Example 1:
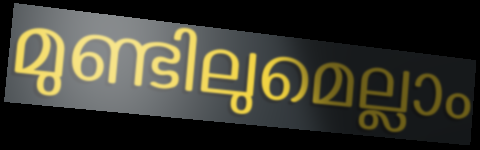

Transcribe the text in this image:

മുണ്ടിലുമെല്ലാം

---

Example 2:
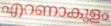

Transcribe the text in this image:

എറണാകുളം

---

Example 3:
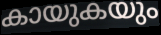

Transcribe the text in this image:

കായുകയും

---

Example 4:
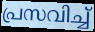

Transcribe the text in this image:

പ്രസവിച്ച്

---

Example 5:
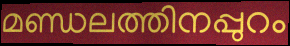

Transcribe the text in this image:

മണ്ഡലത്തിനപ്പുറം